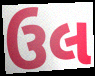
ઉલ